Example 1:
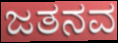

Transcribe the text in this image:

ಜತನವ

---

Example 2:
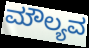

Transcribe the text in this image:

ಮೌಲ್ಯವ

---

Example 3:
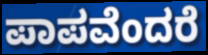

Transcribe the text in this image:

ಪಾಪವೆಂದರೆ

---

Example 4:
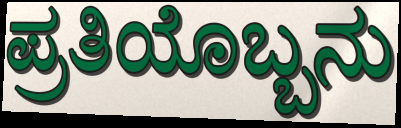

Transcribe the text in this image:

ಪ್ರತಿಯೊಬ್ಬನು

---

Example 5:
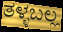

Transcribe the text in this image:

ತಳ್ಳಬಲ್ಲ